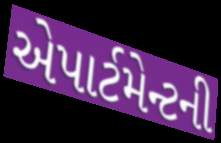
એપાર્ટમેન્ટની